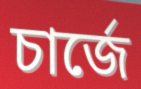
চার্জে